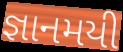
જ્ઞાનમયી